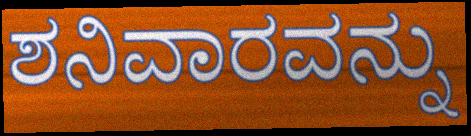
ಶನಿವಾರವನ್ನು